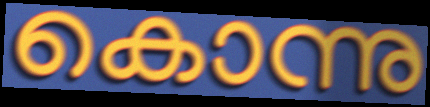
കൊന്നു